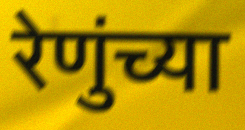
रेणुंच्या